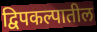
द्विपकल्पातील